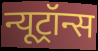
न्यूट्रॉन्स